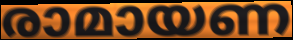
രാമായണ